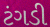
ટંગડી